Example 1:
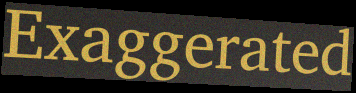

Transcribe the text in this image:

Exaggerated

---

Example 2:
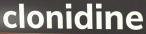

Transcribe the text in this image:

clonidine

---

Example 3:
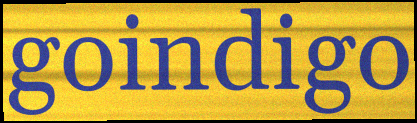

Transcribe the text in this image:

goindigo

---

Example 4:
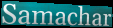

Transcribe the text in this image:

Samachar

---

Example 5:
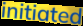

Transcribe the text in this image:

initiated